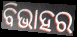
ବିଭାହର